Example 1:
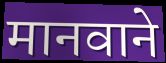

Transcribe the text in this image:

मानवाने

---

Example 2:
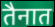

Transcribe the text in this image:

तैनात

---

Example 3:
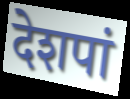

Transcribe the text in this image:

देशपां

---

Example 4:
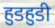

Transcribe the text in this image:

हुडहुडी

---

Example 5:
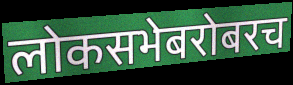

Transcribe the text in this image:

लोकसभेबरोबरच